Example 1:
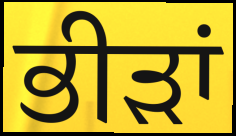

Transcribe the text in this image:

ਭੀੜਾਂ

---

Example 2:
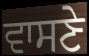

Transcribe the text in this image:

ਵਾਸਣੇ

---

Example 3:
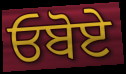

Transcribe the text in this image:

ਓਬੋਏ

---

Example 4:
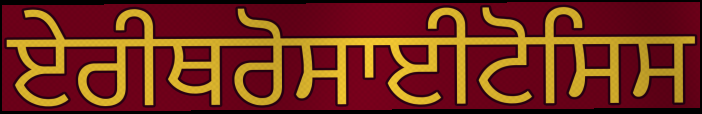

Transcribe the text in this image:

ਏਰੀਥਰੋਸਾਈਟੋਸਿਸ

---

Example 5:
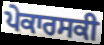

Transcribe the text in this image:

ਪੇਕਾਰਸਕੀ